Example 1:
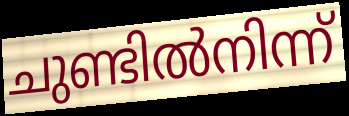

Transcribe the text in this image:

ചുണ്ടിൽനിന്ന്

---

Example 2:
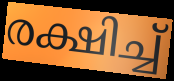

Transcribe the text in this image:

രക്ഷിച്ച്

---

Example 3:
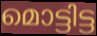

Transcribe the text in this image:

മൊട്ടിട്ട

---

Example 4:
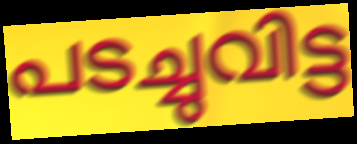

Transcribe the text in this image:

പടച്ചുവിട്ട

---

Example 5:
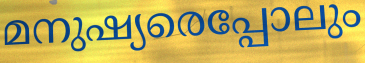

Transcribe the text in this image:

മനുഷ്യരെപ്പോലും